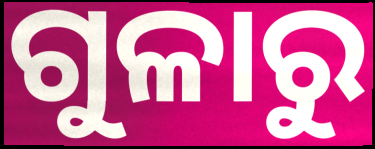
ଗୁଳାରୁ